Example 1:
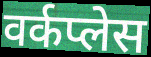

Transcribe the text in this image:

वर्कप्लेस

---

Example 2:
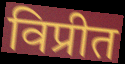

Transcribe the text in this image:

विप्रीत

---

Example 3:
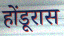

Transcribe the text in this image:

होंडूरास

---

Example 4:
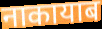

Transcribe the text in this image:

नाकायाब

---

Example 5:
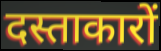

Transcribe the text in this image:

दस्ताकारों